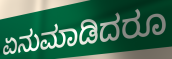
ಏನುಮಾಡಿದರೂ